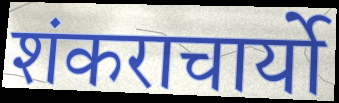
शंकराचार्यो